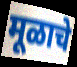
मूळाचे